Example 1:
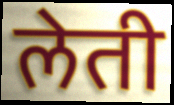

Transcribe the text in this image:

लेती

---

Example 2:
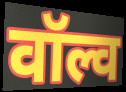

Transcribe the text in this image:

वॉल्व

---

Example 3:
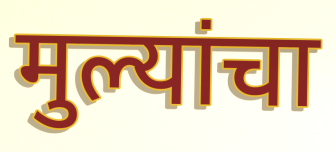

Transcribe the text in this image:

मुल्यांचा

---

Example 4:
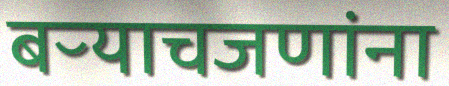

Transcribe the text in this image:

बऱ्याचजणांना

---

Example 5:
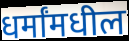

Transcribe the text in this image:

धर्मांमधील